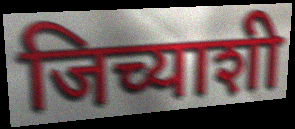
जिच्याशी